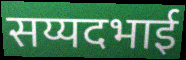
सय्यदभाई